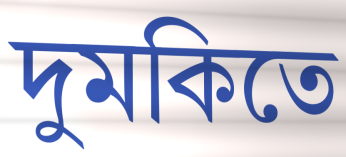
দুমকিতে